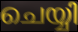
ചെയ്യി